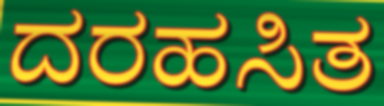
ದರಹಸಿತ